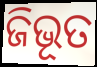
ଜିଭୂତ